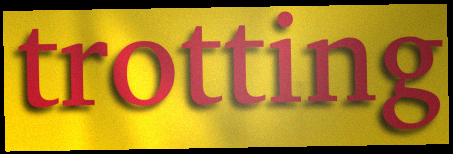
trotting